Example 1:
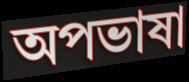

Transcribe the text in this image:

অপভাষা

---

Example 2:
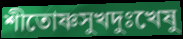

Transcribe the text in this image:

শীতোষ্ণসুখদুঃখেষু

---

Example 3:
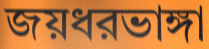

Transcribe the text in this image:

জয়ধরভাঙ্গা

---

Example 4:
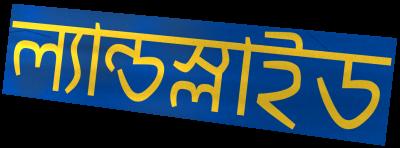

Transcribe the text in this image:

ল্যান্ডস্লাইড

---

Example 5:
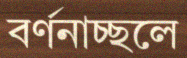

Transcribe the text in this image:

বর্ণনাচ্ছলে